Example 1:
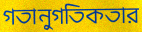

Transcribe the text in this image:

গতানুগতিকতার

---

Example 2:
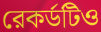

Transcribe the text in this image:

রেকর্ডটিও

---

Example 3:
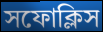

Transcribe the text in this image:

সফোক্লিস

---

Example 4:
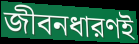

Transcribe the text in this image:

জীবনধারণই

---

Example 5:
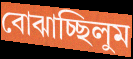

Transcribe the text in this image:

বোঝাচ্ছিলুম